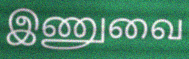
இணுவை